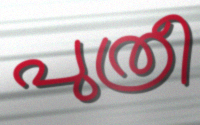
പുത്രീ